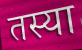
तस्या